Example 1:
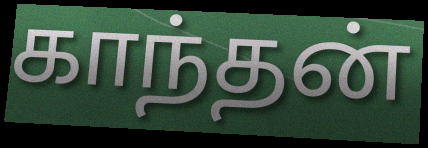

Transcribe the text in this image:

காந்தன்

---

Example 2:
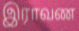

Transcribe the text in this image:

இராவண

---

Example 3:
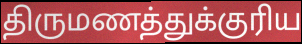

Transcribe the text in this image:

திருமணத்துக்குரிய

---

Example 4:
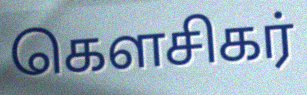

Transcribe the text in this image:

கௌசிகர்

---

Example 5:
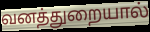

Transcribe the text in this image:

வனத்துறையால்